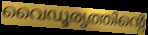
വൈഡൂര്യത്തിന്റെ